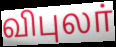
விபுலர்